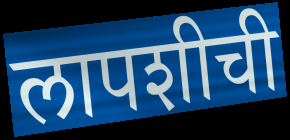
लापशीची